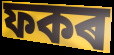
ফকৰ